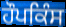
ਹੌਪਕਿੰਸ